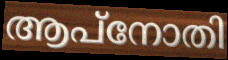
ആപ്നോതി